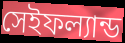
সেইফল্যান্ড